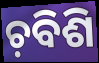
ଚ଼ବିଶି